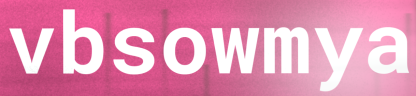
vbsowmya